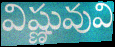
విష్ణువువి